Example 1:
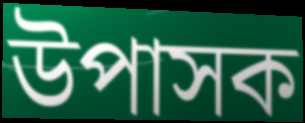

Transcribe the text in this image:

উপাসক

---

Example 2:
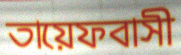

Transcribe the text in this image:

তায়েফবাসী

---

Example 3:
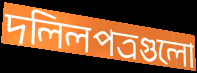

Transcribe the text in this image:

দলিলপত্রগুলো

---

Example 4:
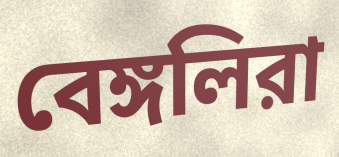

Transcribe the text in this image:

বেঙ্গলিরা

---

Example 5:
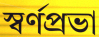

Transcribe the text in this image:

স্বর্ণপ্রভা